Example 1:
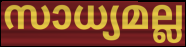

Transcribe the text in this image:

സാധ്യമല്ല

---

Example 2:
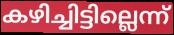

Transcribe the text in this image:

കഴിച്ചിട്ടില്ലെന്ന്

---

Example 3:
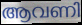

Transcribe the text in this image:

ആവണി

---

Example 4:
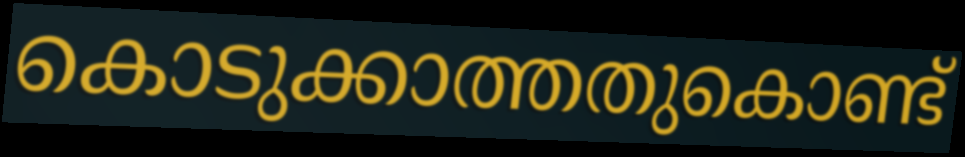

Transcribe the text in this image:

കൊടുക്കാത്തതുകൊണ്ട്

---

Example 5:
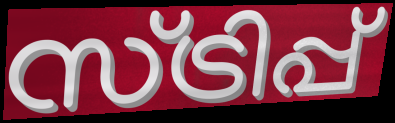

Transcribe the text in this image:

സ്ട്രിപ്പ്